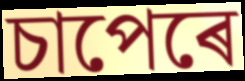
চাপেৰে